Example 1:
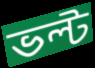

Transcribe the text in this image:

ভল্ট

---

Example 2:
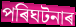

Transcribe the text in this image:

পৰিঘটনাৰ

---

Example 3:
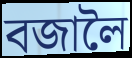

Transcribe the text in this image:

বজালৈ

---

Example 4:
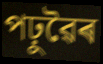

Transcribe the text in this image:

পঢ়ুৱৈৰ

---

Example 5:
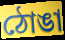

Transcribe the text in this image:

ঠোঙা